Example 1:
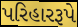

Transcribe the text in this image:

પરિહારરૂપે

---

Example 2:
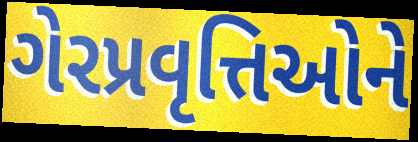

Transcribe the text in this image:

ગેરપ્રવૃત્તિઓને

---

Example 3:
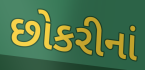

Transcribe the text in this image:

છોકરીનાં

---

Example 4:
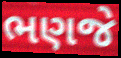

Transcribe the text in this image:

ભણજે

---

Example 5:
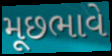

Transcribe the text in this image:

મૂછભાવે